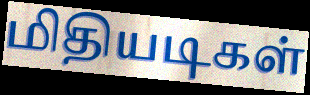
மிதியடிகள்